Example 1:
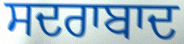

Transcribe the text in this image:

ਸਦਰਾਬਾਦ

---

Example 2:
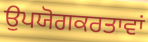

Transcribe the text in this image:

ਉਪਯੋਗਕਰਤਾਵਾਂ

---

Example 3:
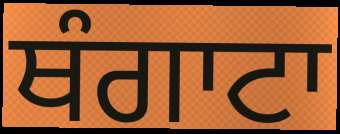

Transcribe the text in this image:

ਥੰਗਾਟਾ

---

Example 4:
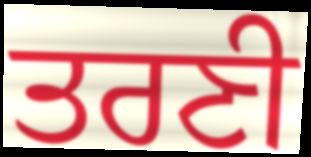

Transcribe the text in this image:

ਤਰਣੀ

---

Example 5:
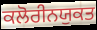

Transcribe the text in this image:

ਕਲੋਰੀਨਯੁਕਤ